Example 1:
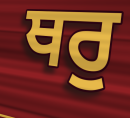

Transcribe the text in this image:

ਥਰੁ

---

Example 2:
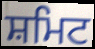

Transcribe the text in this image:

ਸ਼ਮਿਟ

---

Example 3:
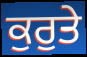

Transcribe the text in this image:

ਕੁਰੁਤੇ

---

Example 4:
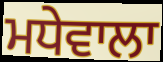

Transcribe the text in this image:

ਮਧੇਵਾਲਾ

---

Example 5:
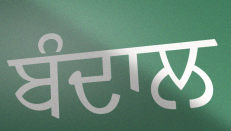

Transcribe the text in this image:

ਬੰਦਾਲ